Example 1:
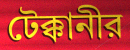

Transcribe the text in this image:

টেক্কানীর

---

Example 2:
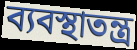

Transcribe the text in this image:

ব্যবস্থাতন্ত্র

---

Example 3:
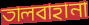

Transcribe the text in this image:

তালবাহানা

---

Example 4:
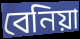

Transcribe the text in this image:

বেনিয়া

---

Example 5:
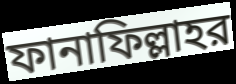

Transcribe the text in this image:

ফানাফিল্লাহর